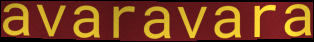
avaravara